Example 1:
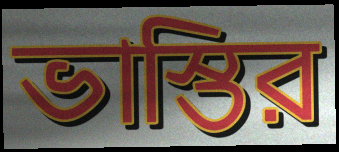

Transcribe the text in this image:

ভাস্তির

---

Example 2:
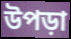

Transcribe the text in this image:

উপড়া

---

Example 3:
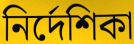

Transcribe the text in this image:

নির্দেশিকা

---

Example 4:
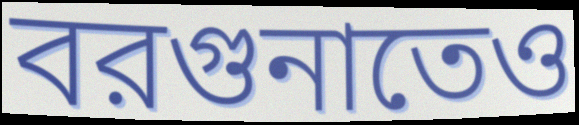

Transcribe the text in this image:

বরগুনাতেও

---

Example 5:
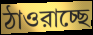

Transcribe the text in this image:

ঠাওরাচ্ছে